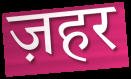
ज़हर